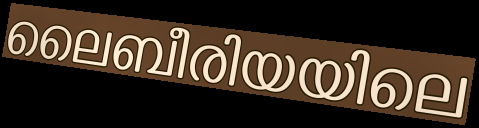
ലൈബീരിയയിലെ